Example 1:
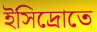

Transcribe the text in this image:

ইসিদ্রোতে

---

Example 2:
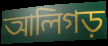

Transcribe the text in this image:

আলিগড়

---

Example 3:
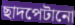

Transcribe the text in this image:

ছাদপেটানো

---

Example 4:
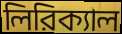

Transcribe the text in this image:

লিরিক্যাল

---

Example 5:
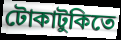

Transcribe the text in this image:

টোকাটুকিতে